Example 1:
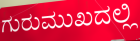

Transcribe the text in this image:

ಗುರುಮುಖದಲ್ಲಿ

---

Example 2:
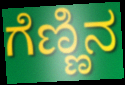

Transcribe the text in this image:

ಗೆಣ್ಣಿನ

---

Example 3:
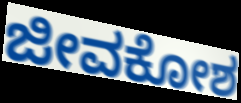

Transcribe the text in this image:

ಜೀವಕೋಶ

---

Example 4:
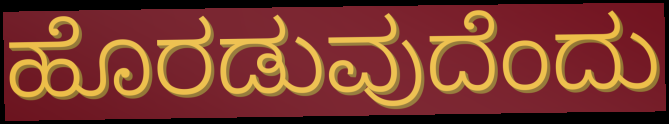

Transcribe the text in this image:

ಹೊರಡುವುದೆಂದು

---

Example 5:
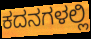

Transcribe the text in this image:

ಕದನಗಳಲ್ಲಿ